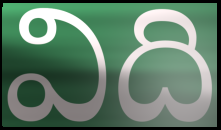
విది